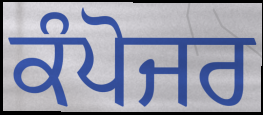
ਕੰਪੋਜਰ